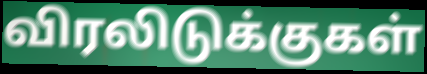
விரலிடுக்குகள்